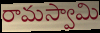
రామస్వామి